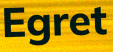
Egret